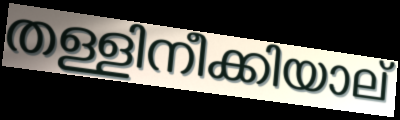
തള്ളിനീക്കിയാല്